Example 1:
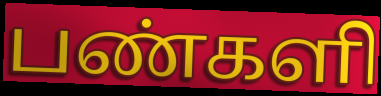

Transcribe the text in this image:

பண்களி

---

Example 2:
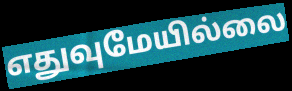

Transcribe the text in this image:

எதுவுமேயில்லை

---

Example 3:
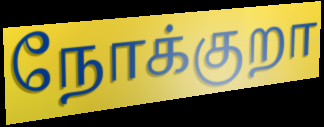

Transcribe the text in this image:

நோக்குறா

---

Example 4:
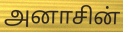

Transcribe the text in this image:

அனாசின்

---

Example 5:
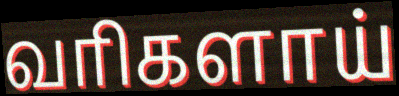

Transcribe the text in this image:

வரிகளாய்